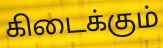
கிடைக்கும்